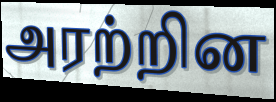
அரற்றின